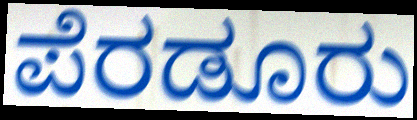
ಪೆರಡೂರು